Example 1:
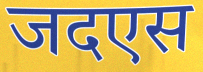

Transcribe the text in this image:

जदएस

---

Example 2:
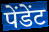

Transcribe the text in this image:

पेंडेंट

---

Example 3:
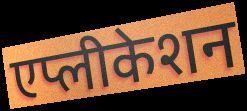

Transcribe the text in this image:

एप्लीकेशन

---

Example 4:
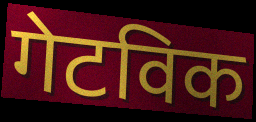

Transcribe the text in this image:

गेटविक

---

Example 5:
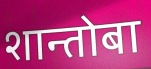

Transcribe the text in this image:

शान्तोबा